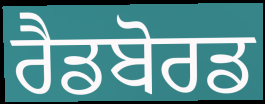
ਰੈਡਬੋਰਡ